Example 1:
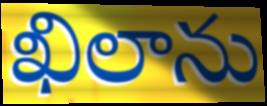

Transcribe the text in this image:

ఖిలాను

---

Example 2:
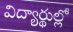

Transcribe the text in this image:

విద్యార్థుల్లో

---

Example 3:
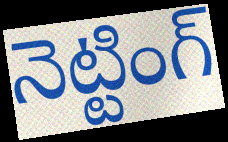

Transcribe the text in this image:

నెట్టింగ్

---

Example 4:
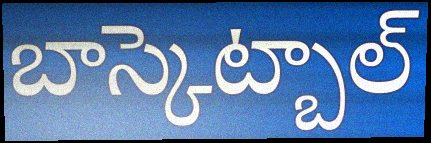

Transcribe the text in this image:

బాస్కెట్బాల్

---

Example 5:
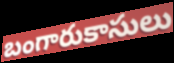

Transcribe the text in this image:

బంగారుకాసులు